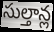
సుల్తాన్ల